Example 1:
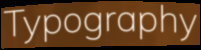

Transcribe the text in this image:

Typography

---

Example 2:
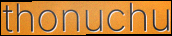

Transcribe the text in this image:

thonuchu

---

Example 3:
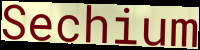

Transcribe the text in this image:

Sechium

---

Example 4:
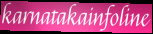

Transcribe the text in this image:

karnatakainfoline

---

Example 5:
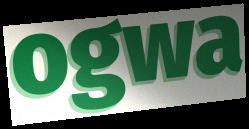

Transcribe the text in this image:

ogwa